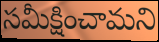
సమీక్షించామని